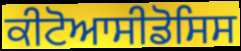
ਕੀਟੋਆਸੀਡੋਸਿਸ